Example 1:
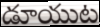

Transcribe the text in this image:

డూయుట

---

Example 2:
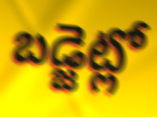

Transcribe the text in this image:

బడ్జెట్లో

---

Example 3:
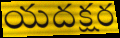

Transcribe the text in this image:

యదక్షర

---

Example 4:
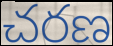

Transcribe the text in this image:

చరణ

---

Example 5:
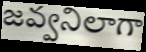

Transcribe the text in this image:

జవ్వనిలాగా